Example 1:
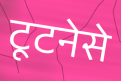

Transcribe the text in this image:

टूटनेसे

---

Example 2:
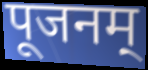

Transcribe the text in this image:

पूजनम्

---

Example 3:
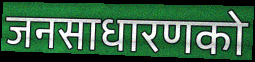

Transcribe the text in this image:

जनसाधारणको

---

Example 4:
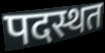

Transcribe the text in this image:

पदस्थत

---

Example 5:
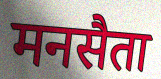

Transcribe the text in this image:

मनसैता